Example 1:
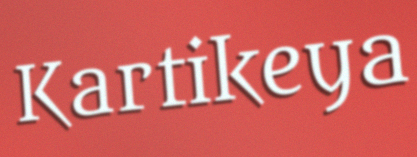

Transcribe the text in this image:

Kartikeya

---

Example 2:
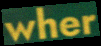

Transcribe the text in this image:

wher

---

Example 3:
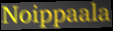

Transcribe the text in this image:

Noippaala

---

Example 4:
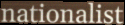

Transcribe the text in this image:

nationalist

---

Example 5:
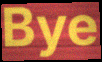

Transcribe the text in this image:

Bye